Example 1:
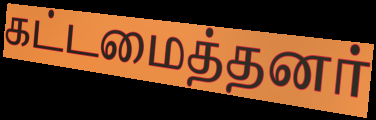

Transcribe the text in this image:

கட்டமைத்தனர்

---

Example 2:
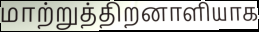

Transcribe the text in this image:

மாற்றுத்திறனாளியாக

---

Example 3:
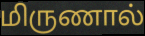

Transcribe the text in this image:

மிருணால்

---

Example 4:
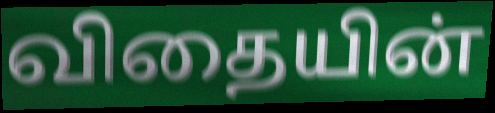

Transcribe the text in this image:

விதையின்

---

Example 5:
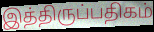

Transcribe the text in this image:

இத்திருப்பதிகம்